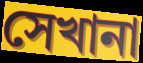
সেখানা